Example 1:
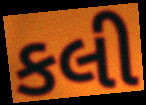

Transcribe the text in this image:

કલી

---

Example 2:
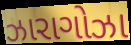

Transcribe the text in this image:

ઝારાગોઝા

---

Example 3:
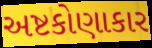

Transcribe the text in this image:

અષ્ટકોણાકાર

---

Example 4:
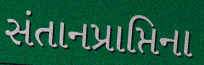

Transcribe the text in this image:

સંતાનપ્રાપ્તિના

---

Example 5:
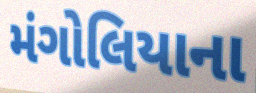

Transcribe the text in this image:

મંગોલિયાના